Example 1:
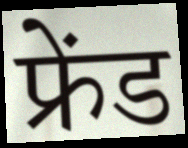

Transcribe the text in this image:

फ्रेंड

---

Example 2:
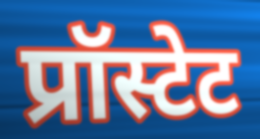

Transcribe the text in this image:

प्रॉस्टेट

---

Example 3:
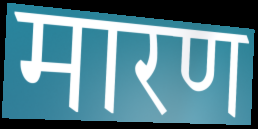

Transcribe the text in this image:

मारण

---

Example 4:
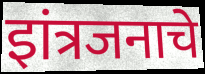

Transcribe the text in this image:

इांत्रजनाचे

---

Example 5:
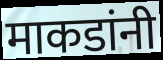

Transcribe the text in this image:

माकडांनी